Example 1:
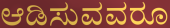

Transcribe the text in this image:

ಆಡಿಸುವವರೂ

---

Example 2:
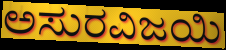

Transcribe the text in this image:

ಅಸುರವಿಜಯಿ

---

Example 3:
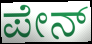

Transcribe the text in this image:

ಪೇನ್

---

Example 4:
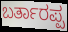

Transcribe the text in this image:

ಬರ್ತಾರಪ್ಪ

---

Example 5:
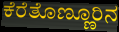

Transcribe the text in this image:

ಕೆರೆತೊಣ್ಣೂರಿನ